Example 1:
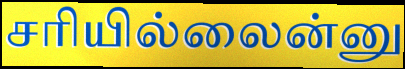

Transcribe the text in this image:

சரியில்லைன்னு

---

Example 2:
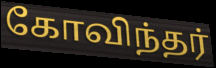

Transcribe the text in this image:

கோவிந்தர்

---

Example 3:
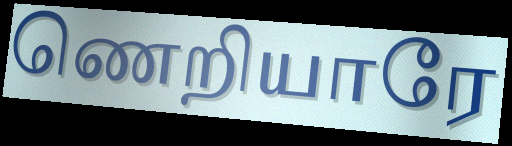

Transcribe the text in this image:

ணெறியாரே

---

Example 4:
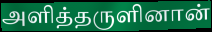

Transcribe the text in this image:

அளித்தருளினான்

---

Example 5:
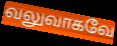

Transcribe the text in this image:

வலுவாகவே